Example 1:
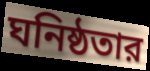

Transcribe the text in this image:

ঘনিষ্ঠতার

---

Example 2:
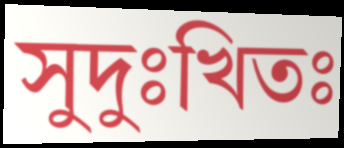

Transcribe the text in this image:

সুদুঃখিতঃ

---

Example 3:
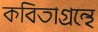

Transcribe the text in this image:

কবিতাগ্রন্থে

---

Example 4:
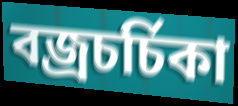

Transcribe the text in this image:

বজ্রচর্চিকা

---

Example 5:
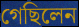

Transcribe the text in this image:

গেছিলেন